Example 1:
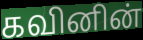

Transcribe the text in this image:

கவினின்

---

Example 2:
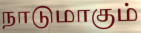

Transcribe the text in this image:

நாடுமாகும்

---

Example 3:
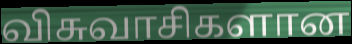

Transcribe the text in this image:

விசுவாசிகளான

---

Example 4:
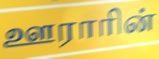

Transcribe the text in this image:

ஊராரின்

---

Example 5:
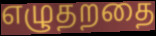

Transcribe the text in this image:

எழுதறதை